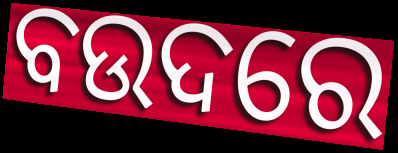
ବଉଦରେ